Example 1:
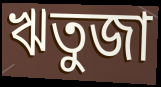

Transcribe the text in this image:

ঋতুজা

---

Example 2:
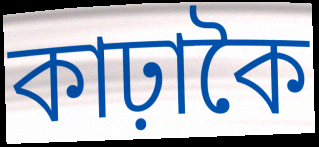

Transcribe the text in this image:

কাঢ়াকৈ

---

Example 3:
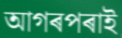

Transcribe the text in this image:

আগৰপৰাই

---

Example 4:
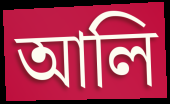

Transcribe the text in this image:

আলি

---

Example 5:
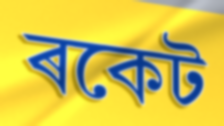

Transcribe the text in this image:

ৰকেট